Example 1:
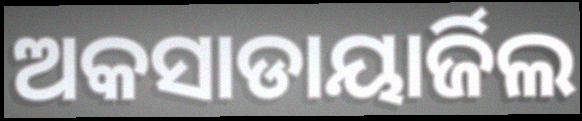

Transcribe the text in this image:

ଅକସାଡାୟାର୍ଜିଲ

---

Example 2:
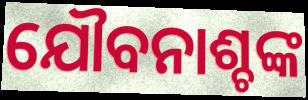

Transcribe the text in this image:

ଯୌବନାଶ୍ଚଙ୍କ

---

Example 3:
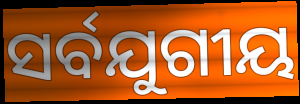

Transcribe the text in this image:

ସର୍ବଯୁଗୀୟ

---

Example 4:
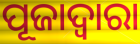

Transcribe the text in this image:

ପୂଜାଦ୍ୱାରା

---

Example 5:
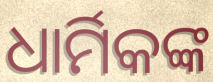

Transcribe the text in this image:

ଧାର୍ମିକଙ୍କ